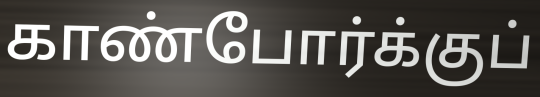
காண்போர்க்குப்